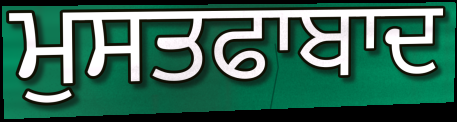
ਮੁਸਤਫਾਬਾਦ